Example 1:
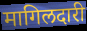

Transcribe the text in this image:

मागिलदारी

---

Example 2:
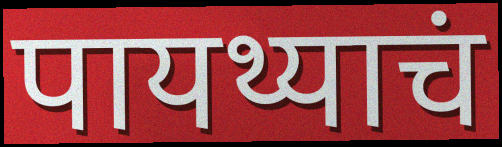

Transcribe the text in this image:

पायथ्याचं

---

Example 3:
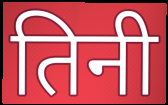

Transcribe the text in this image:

तिनी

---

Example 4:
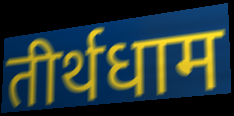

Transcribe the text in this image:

तीर्थधाम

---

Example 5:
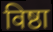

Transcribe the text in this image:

विष्ठा